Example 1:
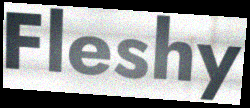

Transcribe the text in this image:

Fleshy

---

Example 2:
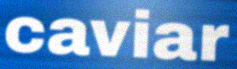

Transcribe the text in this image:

caviar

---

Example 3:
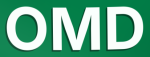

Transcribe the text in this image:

OMD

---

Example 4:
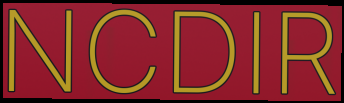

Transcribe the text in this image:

NCDIR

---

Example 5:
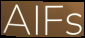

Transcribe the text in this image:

AIFs